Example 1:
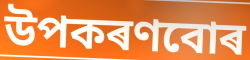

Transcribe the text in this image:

উপকৰণবোৰ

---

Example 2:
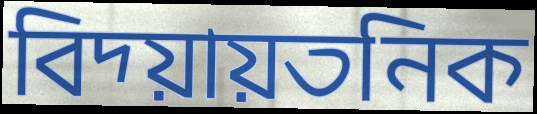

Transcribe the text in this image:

বিদ্য়ায়তনিক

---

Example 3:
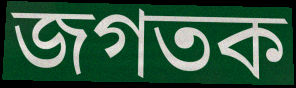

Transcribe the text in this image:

জগতক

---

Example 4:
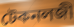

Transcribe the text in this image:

টেকনলজী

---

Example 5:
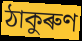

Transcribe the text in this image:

ঠাকুৰুণ